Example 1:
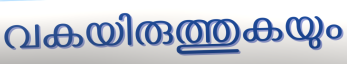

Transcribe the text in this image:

വകയിരുത്തുകയും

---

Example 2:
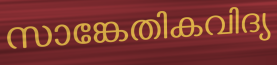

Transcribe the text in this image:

സാങ്കേതികവിദ്യ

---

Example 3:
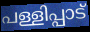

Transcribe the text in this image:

പള്ളിപ്പാട്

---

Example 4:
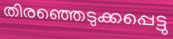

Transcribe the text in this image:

തിരഞ്ഞെടുക്കപ്പെട്ടു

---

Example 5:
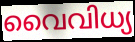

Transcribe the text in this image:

വൈവിധ്യ